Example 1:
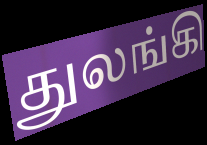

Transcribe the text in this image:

துலங்கி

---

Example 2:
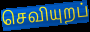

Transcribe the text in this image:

செவியுறப்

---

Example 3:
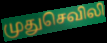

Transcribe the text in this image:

முதுசெவிலி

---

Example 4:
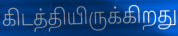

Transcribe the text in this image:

கிடத்தியிருக்கிறது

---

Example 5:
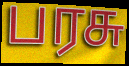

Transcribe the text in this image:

பரசு